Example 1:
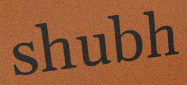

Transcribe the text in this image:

shubh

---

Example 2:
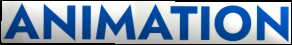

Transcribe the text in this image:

ANIMATION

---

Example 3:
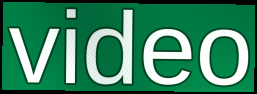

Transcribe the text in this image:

video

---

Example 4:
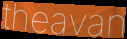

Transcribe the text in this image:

theavan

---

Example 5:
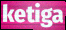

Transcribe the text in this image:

ketiga